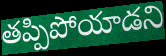
తప్పిపోయాడని